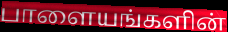
பாளையங்களின்